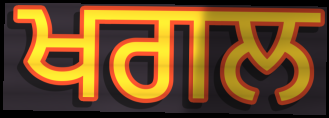
ਖਗਲ